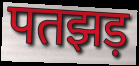
पतझड़